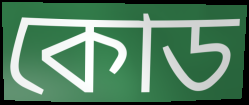
কোড